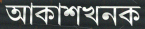
আকাশখনক